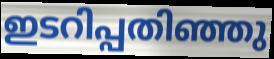
ഇടറിപ്പതിഞ്ഞു